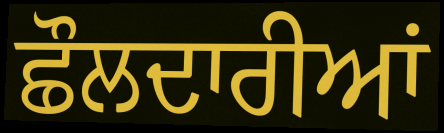
ਛੌਲਦਾਰੀਆਂ